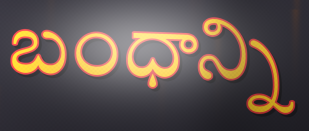
బంధాన్ని